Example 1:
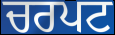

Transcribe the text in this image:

ਚਰਪਟ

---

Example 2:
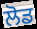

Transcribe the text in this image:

ਲੋਡ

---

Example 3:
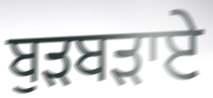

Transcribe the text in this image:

ਬੁੜਬੜਾਏ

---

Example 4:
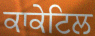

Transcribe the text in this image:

ਕਾਕੇਟਿਲ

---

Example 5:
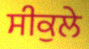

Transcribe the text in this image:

ਸੀਕੁਲੇ